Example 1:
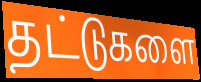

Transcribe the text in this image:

தட்டுகளை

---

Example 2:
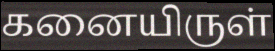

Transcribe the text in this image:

கனையிருள்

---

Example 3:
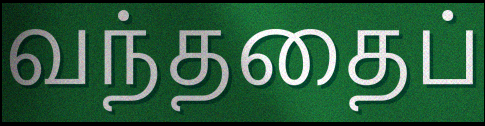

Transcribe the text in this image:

வந்ததைப்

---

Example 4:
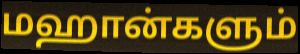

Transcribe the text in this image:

மஹான்களும்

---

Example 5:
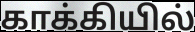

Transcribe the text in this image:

காக்கியில்